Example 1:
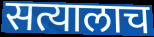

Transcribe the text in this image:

सत्यालाच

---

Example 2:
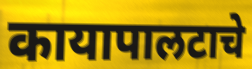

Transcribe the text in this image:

कायापालटाचे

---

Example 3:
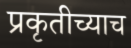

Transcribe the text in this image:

प्रकृतीच्याच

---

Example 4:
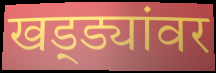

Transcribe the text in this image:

खड्ड्यांवर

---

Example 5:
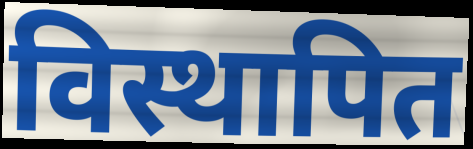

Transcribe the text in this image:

विस्थापित